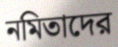
নমিতাদের